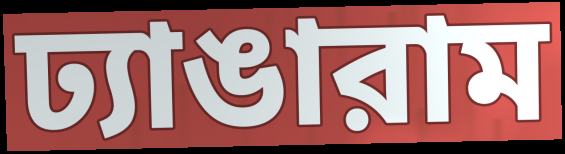
ঢ্যাঙারাম